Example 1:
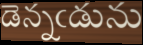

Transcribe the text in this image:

డెన్నఁడును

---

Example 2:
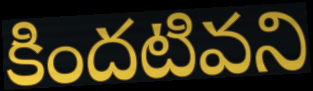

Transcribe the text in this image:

కిందటివని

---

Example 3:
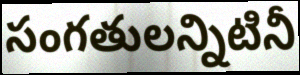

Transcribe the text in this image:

సంగతులన్నిటినీ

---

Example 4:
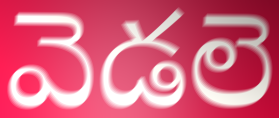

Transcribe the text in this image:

వెడలె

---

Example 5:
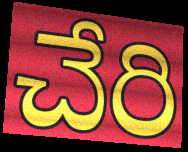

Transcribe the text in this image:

చేరి